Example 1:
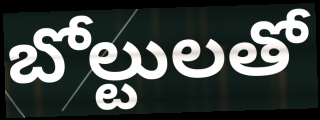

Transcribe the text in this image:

బోల్టులతో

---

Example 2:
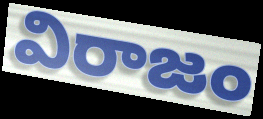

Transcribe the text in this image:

విరాజం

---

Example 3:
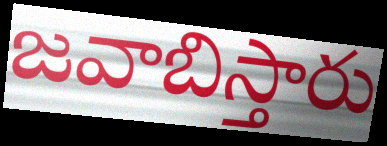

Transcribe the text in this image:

జవాబిస్తారు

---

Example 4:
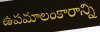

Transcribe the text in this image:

ఉపమాలంకారాన్ని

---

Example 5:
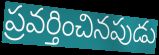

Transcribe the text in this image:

ప్రవర్తించినపుడు